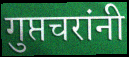
गुप्तचरांनी